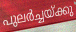
പുലർച്ചയ്ക്കു